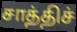
சாத்திச்